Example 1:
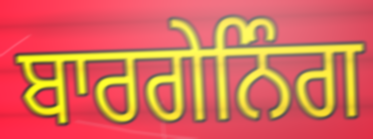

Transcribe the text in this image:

ਬਾਰਗੇਨਿੰਗ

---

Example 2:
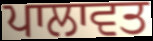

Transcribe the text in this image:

ਪਾਲਾਵਤ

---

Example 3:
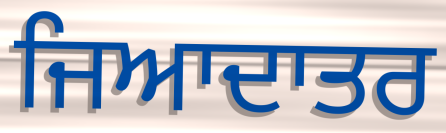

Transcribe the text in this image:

ਜਿਆਦਾਤਰ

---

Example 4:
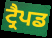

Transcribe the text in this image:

ਟ੍ਰੈਪਡ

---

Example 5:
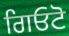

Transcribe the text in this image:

ਗਿਓਟੋ